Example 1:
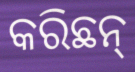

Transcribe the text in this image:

କରିଛନ୍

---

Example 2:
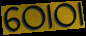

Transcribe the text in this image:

ଠୋଠା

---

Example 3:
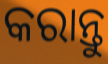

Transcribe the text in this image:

କରାନ୍ତୁ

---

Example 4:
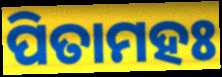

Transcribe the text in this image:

ପିତାମହଃ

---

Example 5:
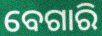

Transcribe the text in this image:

ବେଗାରି